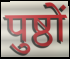
पुष्ठों